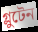
গ্লুটেন